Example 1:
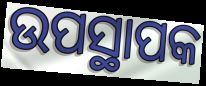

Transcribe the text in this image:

ଉପସ୍ଥାପକ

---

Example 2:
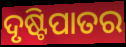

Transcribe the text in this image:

ଦୃଷ୍ଟିପାତର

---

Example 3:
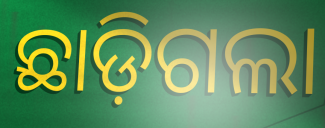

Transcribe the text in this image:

ଛାଡ଼ିଗଲା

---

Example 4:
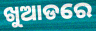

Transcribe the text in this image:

ଖୁଆଡରେ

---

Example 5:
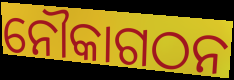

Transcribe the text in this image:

ନୌକାଗଠନ